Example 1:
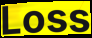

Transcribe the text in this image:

Loss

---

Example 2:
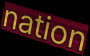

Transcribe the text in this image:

nation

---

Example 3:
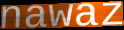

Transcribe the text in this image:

nawaz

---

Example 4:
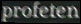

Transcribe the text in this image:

profeten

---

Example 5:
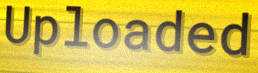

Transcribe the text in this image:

Uploaded